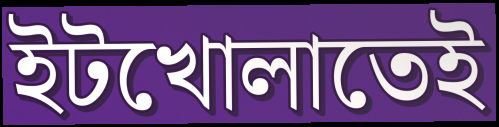
ইটখোলাতেই